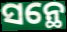
ସନ୍ଥେ